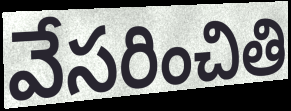
వేసరించితి